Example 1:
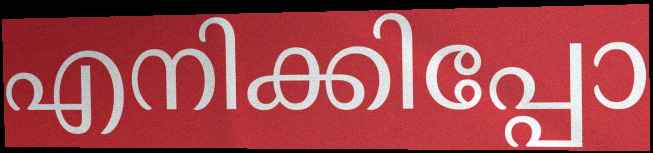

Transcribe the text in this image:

എനിക്കിപ്പോ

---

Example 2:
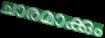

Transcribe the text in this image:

ചാരമാക്കും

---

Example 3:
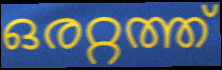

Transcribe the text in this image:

ഒരറ്റത്ത്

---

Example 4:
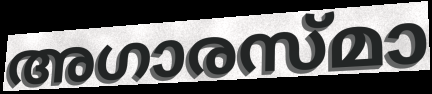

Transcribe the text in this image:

അഗാരസ്മാ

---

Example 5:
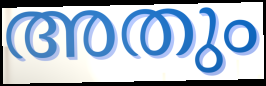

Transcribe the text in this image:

അതും